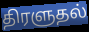
திரளுதல்